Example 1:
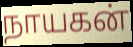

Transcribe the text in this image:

நாயகன்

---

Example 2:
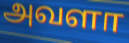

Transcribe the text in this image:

அவளா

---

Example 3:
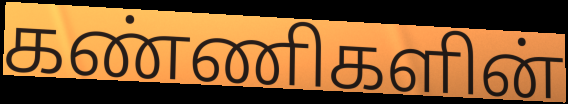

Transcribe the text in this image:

கண்ணிகளின்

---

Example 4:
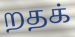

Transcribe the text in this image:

றதக்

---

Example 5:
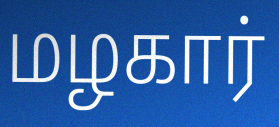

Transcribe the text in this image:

மழகார்